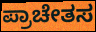
ಪ್ರಾಚೇತಸ